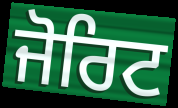
ਜੋਰਿਟ